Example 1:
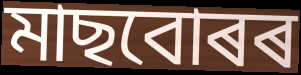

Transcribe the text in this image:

মাছবোৰৰ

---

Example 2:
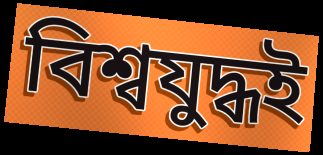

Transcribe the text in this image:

বিশ্বযুদ্ধই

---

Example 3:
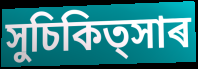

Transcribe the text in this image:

সুচিকিত্সাৰ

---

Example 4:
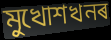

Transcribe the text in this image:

মুখোশখনৰ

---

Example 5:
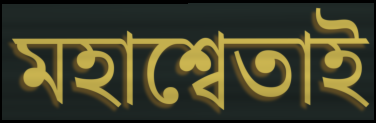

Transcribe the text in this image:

মহাশ্বেতাই